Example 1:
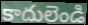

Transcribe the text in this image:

కాదులెండి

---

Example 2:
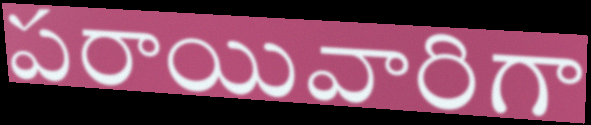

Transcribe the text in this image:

పరాయివారిగా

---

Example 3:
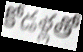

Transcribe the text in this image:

కోడళ్లతో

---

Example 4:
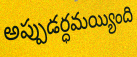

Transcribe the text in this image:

అప్పుడర్ధమయ్యింది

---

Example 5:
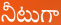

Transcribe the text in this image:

నీటుగా